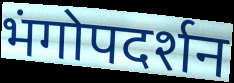
भंगोपदर्शन